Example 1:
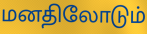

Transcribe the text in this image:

மனதிலோடும்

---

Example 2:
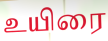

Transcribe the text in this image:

உயிரை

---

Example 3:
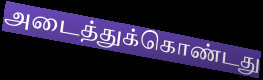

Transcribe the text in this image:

அடைத்துக்கொண்டது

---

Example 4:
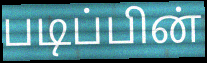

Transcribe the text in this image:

படிப்பின்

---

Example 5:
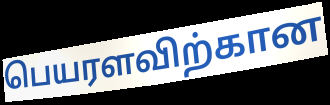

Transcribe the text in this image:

பெயரளவிற்கான